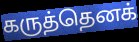
கருத்தெனக்